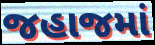
જહાજમાં